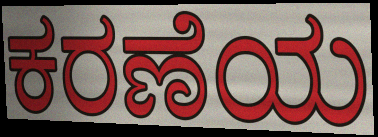
ಕರಣೆಯ